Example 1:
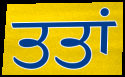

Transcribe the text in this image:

ਤਤਾਂ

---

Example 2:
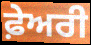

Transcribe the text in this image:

ਫ਼ੇਅਰੀ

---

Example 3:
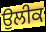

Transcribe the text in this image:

ਉਲੀਕ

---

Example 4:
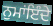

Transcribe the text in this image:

ਨੁਮਾਂਇੰਦੇ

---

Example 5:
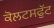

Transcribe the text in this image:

ਕੋਲਟਸਫੁੱਟ